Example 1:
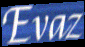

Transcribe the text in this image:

Evaz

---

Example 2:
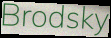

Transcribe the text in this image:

Brodsky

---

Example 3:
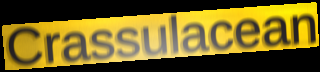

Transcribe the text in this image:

Crassulacean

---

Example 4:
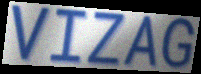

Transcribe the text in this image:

VIZAG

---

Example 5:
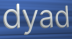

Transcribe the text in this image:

dyad